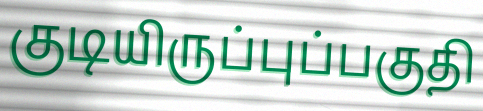
குடியிருப்புப்பகுதி